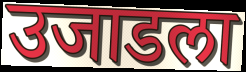
उजाडला